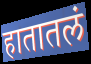
हातातलं